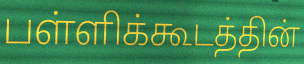
பள்ளிக்கூடத்தின்